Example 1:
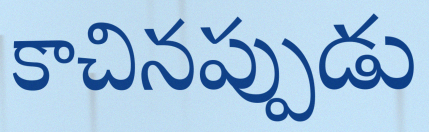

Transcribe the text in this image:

కాచినప్పుడు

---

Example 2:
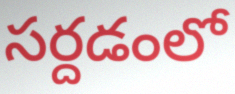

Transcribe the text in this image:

సర్దడంలో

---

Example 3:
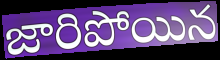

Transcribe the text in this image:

జారిపోయిన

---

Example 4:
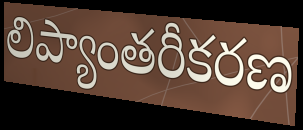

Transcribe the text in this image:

లిప్యాంతరీకరణ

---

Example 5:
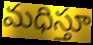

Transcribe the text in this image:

మధిస్తూ